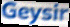
Geysir